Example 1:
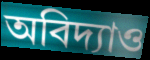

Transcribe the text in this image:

অবিদ্যাও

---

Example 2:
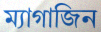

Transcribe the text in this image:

ম্যাগাজিন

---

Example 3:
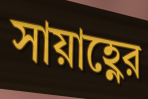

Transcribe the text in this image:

সায়াহ্ণের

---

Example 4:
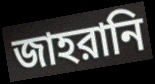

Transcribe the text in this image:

জাহরানি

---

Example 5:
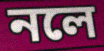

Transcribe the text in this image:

নলে